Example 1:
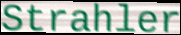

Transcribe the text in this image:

Strahler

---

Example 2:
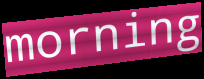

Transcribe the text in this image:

morning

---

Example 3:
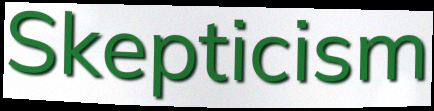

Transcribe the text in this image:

Skepticism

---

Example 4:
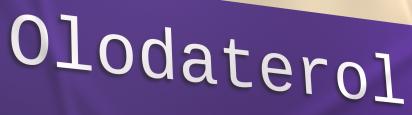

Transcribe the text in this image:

Olodaterol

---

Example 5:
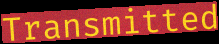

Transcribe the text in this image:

Transmitted